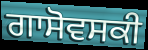
ਗਾਸੋਵਸਕੀ